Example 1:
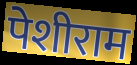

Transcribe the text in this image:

पेशीराम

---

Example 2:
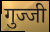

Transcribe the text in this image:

गुज्जी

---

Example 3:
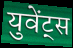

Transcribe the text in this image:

युवेंट्स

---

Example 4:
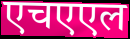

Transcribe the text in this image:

एचएएल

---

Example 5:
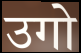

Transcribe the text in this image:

उगो